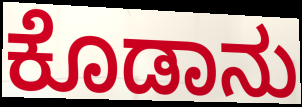
ಕೊಡಾನು